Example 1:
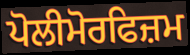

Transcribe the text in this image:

ਪੋਲੀਮੋਰਫਿਜ਼ਮ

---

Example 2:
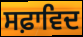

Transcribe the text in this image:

ਸਫ਼ਾਵਿਦ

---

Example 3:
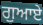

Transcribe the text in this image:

ਗੁਆਏ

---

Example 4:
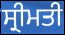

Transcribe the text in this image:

ਸ੍ਰੀਮਤੀ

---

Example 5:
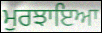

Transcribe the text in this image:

ਮੁਰਝਾਇਆ